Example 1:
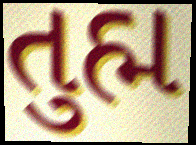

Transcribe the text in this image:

તુહ્મ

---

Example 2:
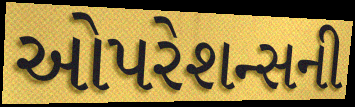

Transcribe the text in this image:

ઓપરેશન્સની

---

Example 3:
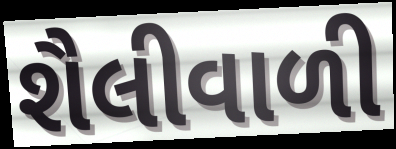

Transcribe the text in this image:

શૈલીવાળી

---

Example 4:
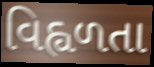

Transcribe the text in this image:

વિહ્વળતા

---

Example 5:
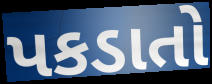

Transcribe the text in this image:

પકડાતો